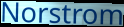
Norstrom